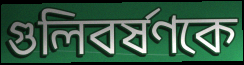
গুলিবর্ষণকে